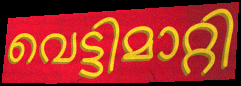
വെട്ടിമാറ്റി